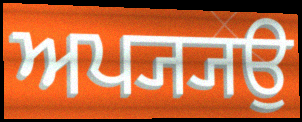
ਅਪ੍ਯ੍ਯਉ